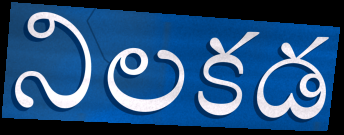
నిలకడ